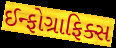
ઈન્ફોગ્રાફિક્સ